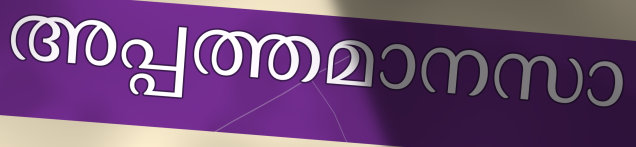
അപ്പത്തമാനസാ